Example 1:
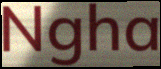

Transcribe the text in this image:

Ngha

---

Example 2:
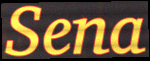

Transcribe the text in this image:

Sena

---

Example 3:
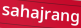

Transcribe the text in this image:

sahajrang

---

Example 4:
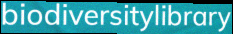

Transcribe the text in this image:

biodiversitylibrary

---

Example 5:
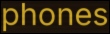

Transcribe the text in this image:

phones